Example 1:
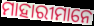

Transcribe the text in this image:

ମାହାରୀମାନେ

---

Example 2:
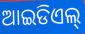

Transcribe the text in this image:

ଆଇଡିଏଲ୍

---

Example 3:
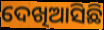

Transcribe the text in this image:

ଦେଖିଆସିଛି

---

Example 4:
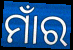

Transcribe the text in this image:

ମାଁର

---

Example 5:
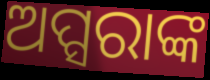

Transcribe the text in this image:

ଅପ୍ସରାଙ୍କ